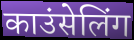
काउंसेलिंग